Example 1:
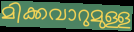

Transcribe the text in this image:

മിക്കവാറുമുള്ള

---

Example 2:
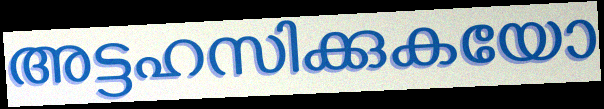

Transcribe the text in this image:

അട്ടഹസിക്കുകയോ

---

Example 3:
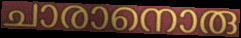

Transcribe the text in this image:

ചാരാനൊരു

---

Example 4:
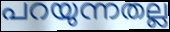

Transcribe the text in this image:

പറയുന്നതല്ല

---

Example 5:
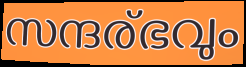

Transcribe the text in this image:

സന്ദര്ഭവും